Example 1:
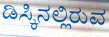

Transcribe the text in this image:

ಡಿಸ್ಕಿನಲ್ಲಿರುವ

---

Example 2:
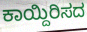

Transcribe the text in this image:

ಕಾಯ್ದಿರಿಸದ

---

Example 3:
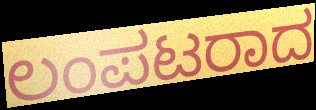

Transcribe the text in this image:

ಲಂಪಟರಾದ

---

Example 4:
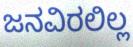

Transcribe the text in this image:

ಜನವಿರಲಿಲ್ಲ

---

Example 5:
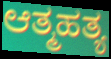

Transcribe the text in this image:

ಆತ್ಮಹತ್ಯ